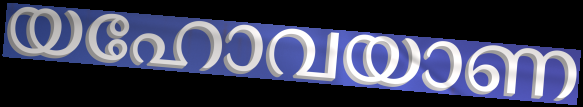
യഹോവയാണ